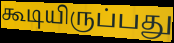
கூடியிருப்பது